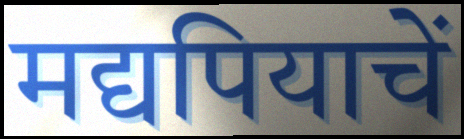
मद्यपियाचें